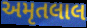
અમૃતલાલ